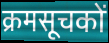
क्रमसूचकों